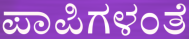
ಪಾಪಿಗಳಂತೆ